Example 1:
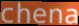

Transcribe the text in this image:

chena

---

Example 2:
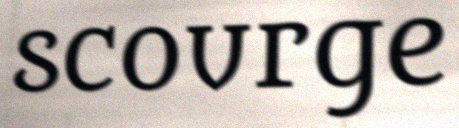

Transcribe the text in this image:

scourge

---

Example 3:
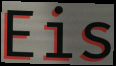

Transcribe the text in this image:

Eis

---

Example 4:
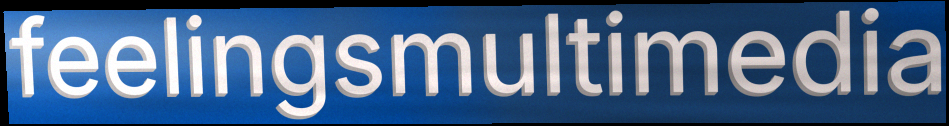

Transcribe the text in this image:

feelingsmultimedia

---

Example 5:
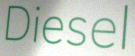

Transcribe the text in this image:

Diesel